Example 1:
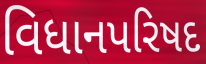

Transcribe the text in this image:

વિધાનપરિષદ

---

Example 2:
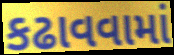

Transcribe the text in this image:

કઢાવવામાં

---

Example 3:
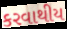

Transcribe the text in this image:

કરવાથીય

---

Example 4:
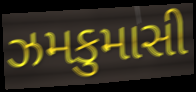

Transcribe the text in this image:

ઝમકુમાસી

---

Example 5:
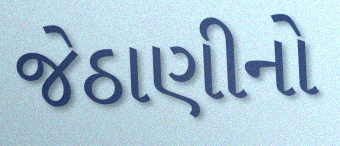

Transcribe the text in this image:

જેઠાણીનો